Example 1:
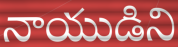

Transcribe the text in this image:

నాయుడిని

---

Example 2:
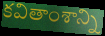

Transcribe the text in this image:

కవితాంశాన్ని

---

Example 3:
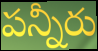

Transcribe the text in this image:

పన్నీరు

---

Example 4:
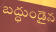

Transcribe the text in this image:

బద్ధుండైన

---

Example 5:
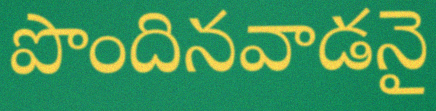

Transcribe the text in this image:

పొందినవాడనై